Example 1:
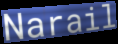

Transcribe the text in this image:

Narail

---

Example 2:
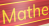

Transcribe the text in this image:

Mathe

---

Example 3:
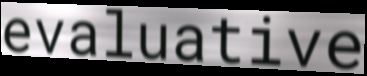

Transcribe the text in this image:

evaluative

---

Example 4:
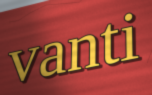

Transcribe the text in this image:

vanti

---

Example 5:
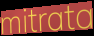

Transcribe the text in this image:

mitrata